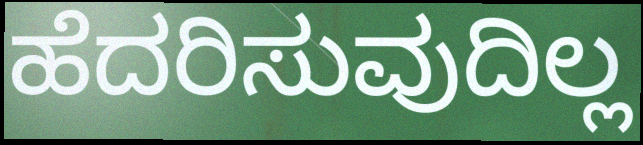
ಹೆದರಿಸುವುದಿಲ್ಲ